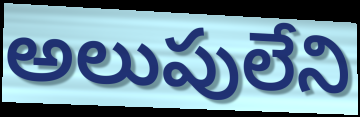
అలుపులేని